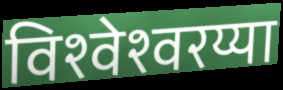
विश्वेश्वरय्या